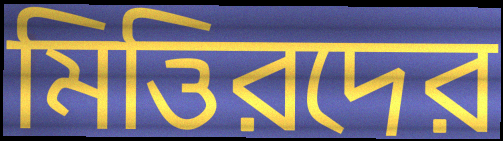
মিত্তিরদের